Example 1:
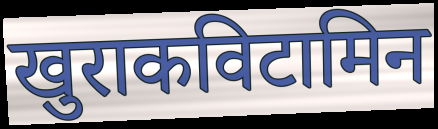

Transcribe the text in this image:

खुराकविटामिन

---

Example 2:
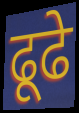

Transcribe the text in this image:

ढूढे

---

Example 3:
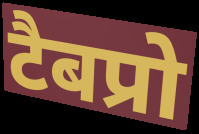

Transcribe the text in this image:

टैबप्रो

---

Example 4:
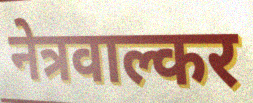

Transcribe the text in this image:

नेत्रवाल्कर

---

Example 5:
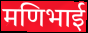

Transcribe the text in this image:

मणिभाई